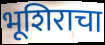
भूशिराचा